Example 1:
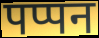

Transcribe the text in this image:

पप्पन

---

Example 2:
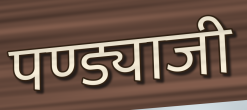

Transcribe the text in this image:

पण्ड्याजी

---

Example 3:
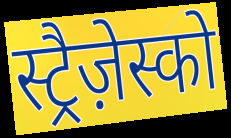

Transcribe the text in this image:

स्ट्रैज़ेस्को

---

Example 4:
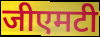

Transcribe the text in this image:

जीएमटी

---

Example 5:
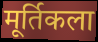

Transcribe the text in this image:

मूर्तिकला